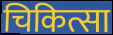
चिकित्सा